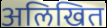
अलिखित